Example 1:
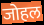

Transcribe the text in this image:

जोहल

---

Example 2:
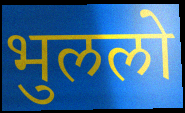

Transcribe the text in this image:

भुललो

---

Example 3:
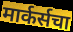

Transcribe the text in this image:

मार्कर्सचा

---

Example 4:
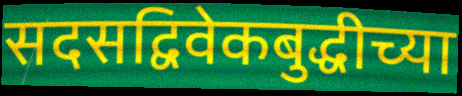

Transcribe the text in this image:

सदसद्विवेकबुद्धीच्या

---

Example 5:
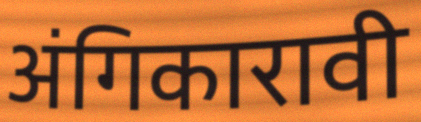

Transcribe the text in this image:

अंगिकारावी